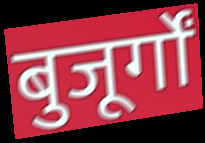
बुजूर्गों